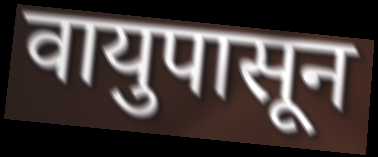
वायुपासून